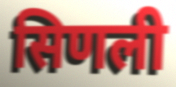
सिणली